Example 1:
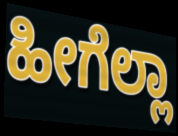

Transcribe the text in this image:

ಹೀಗೆಲ್ಲಾ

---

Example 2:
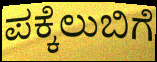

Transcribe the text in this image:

ಪಕ್ಕೆಲುಬಿಗೆ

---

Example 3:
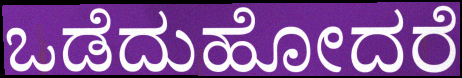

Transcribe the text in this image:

ಒಡೆದುಹೋದರೆ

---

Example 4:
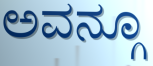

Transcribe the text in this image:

ಅವನ್ಗೂ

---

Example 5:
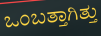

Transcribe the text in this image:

ಒಂಬತ್ತಾಗಿತ್ತು